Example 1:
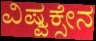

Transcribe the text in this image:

ವಿಷ್ವಕ್ಸೇನ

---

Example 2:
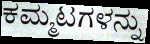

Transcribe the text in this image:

ಕಮ್ಮಟಗಳನ್ನು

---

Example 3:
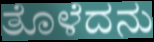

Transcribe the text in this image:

ತೊಳೆದನು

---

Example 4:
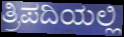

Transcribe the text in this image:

ತ್ರಿಪದಿಯಲ್ಲಿ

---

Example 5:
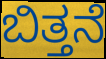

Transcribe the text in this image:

ಬಿತ್ತನೆ